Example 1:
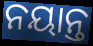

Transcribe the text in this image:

ନୟାନ୍ତ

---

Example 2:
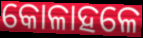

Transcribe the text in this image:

କୋଳାହଳେ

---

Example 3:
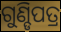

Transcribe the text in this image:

ଗୁଣ୍ଡିପତ୍ର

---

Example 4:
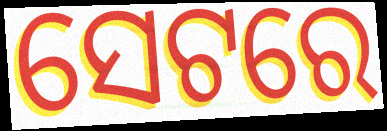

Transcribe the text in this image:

ସେଟରେ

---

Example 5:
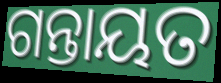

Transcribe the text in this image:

ଗନ୍ତାୟତ